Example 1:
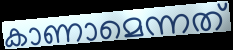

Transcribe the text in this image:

കാണാമെന്നത്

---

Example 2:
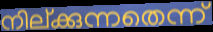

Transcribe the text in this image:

നില്ക്കുന്നതെന്ന്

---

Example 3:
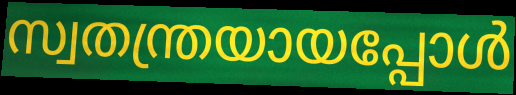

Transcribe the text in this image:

സ്വതന്ത്രയായപ്പോൾ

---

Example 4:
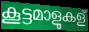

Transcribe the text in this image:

കൂട്ടമാളുകള്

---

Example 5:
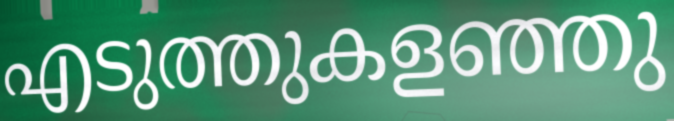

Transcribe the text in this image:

എടുത്തുകളഞ്ഞു